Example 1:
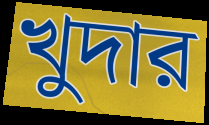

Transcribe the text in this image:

খুদার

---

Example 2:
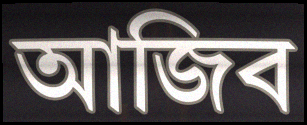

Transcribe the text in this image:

আজিব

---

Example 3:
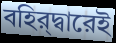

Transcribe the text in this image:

বহির্‌দ্বারেই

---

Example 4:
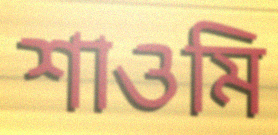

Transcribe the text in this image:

শাওমি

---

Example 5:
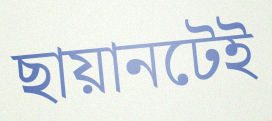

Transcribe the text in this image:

ছায়ানটেই